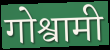
गोश्वामी